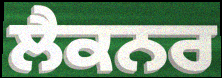
ਲੈਕਨਰ